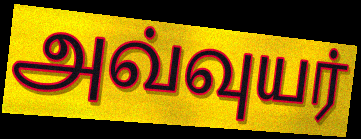
அவ்வுயர்